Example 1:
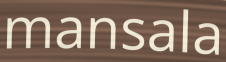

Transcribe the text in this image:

mansala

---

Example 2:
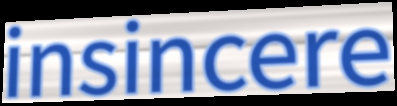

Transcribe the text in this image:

insincere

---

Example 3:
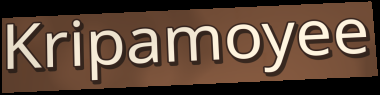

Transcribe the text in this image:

Kripamoyee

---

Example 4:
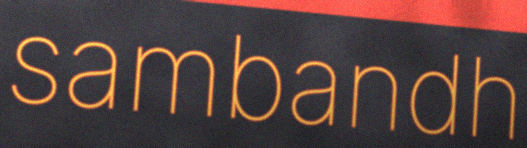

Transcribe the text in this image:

sambandh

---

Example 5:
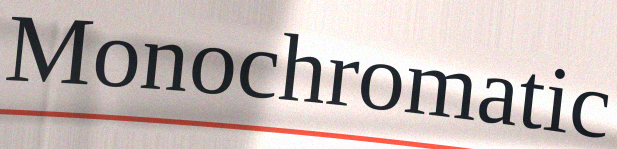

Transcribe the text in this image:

Monochromatic